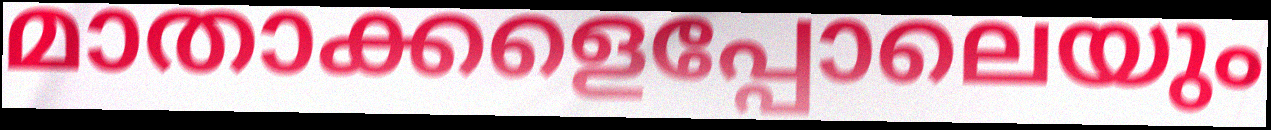
മാതാക്കളെപ്പോലെയും